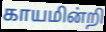
காயமின்றி